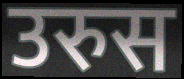
उरुस